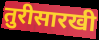
तुरीसारखी